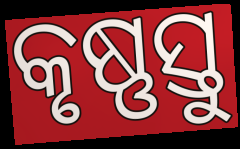
କୃଷ୍ଣସ୍ତୁ